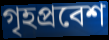
গৃহপ্রবেশ